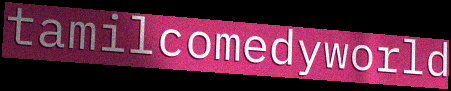
tamilcomedyworld